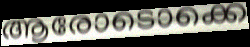
ആരോടൊക്കെ